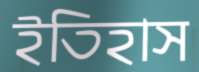
ইতিহাস